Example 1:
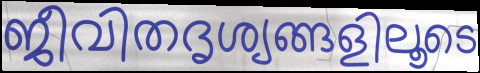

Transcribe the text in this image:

ജീവിതദൃശ്യങ്ങളിലൂടെ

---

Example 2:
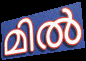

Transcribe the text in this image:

മിൽ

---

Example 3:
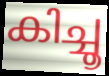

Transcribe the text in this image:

കിച്ചൂ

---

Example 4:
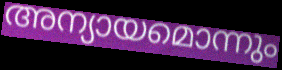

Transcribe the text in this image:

അന്യായമൊന്നും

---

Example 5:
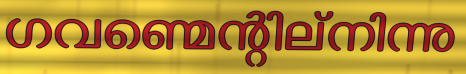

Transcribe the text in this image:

ഗവണ്മെന്റില്നിന്നു